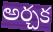
అర్చక